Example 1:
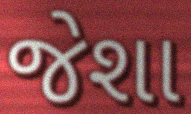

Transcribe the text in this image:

જેશા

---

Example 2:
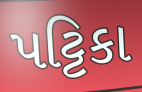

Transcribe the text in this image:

પટ્ટિકા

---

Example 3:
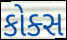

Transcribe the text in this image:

કોક્સ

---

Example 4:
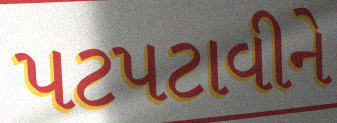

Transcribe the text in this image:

પટપટાવીને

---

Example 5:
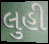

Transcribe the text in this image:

લુહી